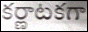
కర్ణాటకగా